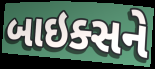
બાઇક્સને